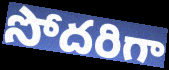
సోదరిగా